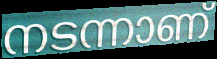
നടന്നാണ്